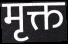
मृक्त